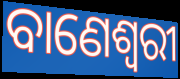
ବାଣେଶ୍ୱରୀ